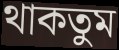
থাকতুম